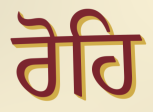
ਰੋਹਿ